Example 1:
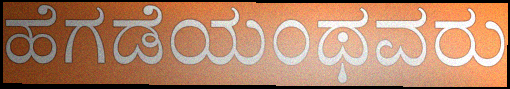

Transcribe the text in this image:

ಹೆಗಡೆಯಂಥವರು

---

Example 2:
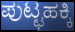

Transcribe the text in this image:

ಪುಟ್ಟಹಕ್ಕಿ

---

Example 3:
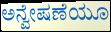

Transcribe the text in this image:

ಅನ್ವೇಷಣೆಯೂ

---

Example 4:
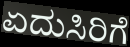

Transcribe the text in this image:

ಏದುಸಿರಿಗೆ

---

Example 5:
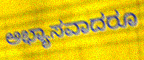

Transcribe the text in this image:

ಅಭ್ಯಾಸವಾದರೂ